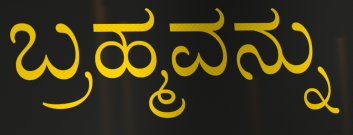
ಬ್ರಹ್ಮವನ್ನು